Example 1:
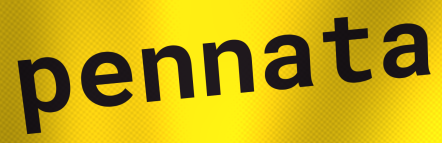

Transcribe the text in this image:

pennata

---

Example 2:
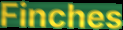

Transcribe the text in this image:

Finches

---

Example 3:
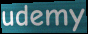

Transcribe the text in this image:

udemy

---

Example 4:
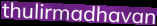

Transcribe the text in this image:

thulirmadhavan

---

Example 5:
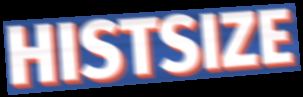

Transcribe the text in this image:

HISTSIZE